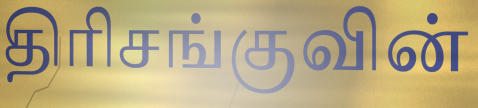
திரிசங்குவின்